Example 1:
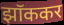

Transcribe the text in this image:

झॉककर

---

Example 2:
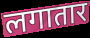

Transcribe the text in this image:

लगातार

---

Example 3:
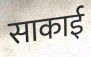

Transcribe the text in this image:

साकाई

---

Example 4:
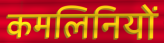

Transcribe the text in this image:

कमलिनियों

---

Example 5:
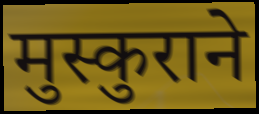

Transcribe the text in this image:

मुस्कुराने